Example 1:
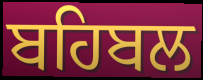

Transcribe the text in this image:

ਬਹਿਬਲ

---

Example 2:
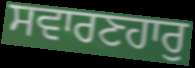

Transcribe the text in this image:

ਸਵਾਰਣਹਾਰੁ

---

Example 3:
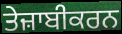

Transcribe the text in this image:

ਤੇਜ਼ਾਬੀਕਰਨ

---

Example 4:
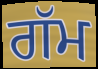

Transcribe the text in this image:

ਗੱਮ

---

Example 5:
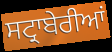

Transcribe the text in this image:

ਸਟ੍ਰਾਬੇਰੀਆਂ